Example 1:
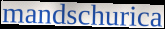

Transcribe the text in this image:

mandschurica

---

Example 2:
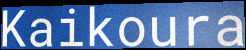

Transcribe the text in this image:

Kaikoura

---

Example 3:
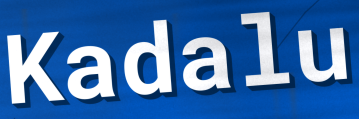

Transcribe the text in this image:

Kadalu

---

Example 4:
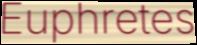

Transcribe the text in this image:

Euphretes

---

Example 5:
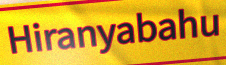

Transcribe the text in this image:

Hiranyabahu